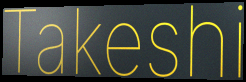
Takeshi